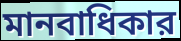
মানবাধিকার